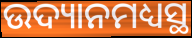
ଉଦ୍ୟାନମଧ୍ୟସ୍ଥ